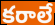
కరాలే